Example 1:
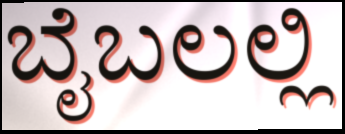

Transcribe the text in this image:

ಬೈಬಲಲ್ಲಿ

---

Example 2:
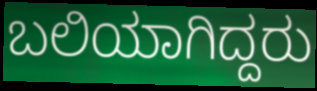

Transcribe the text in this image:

ಬಲಿಯಾಗಿದ್ದರು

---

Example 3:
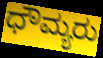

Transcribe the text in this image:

ಧೌಮ್ಯರು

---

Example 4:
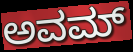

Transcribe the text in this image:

ಅವಮ್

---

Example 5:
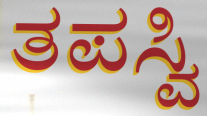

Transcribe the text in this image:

ತಪಸ್ವಿ